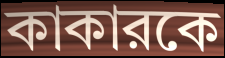
কাকারকে